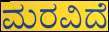
ಮರವಿದೆ